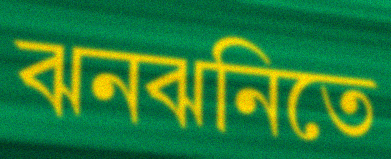
ঝনঝনিতে